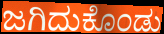
ಜಗಿದುಕೊಂಡು